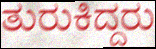
ತುರುಕಿದ್ದರು